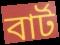
বার্ট